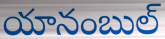
యానంబుల్